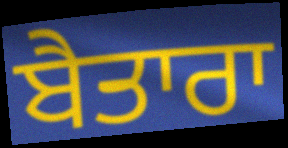
ਬੈਤਾਰਾ